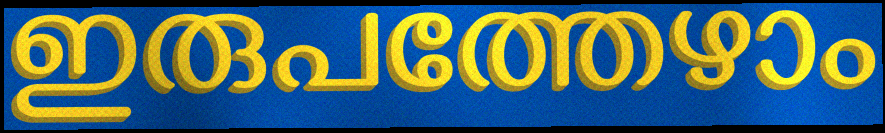
ഇരുപത്തേഴാം